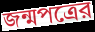
জন্মপত্রের